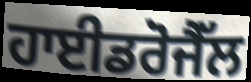
ਹਾਈਡਰੋਜੈੱਲ